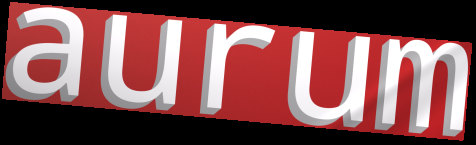
aurum